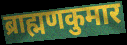
ब्राह्मणकुमार